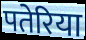
पतेरिया